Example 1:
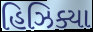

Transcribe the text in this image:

હિઝિક્યા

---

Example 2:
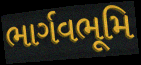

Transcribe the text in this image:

ભાર્ગવભૂમિ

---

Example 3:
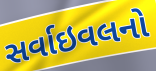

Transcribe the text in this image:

સર્વાઇવલનો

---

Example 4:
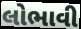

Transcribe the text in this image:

લોભાવી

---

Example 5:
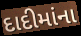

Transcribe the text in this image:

દાદીમાંના